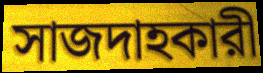
সাজদাহকারী